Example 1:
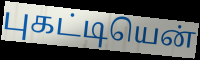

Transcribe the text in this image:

புகட்டியென்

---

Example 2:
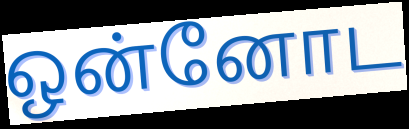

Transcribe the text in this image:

ஒன்னோட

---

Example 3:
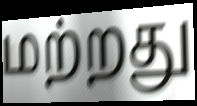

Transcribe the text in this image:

மற்றது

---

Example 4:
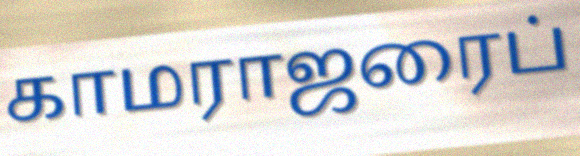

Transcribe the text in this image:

காமராஜரைப்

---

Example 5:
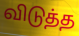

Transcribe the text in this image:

விடுத்த